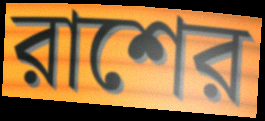
রাশের